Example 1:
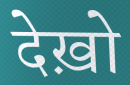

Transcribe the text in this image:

देख़ो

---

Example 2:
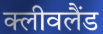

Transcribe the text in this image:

क्‍लीवलैंड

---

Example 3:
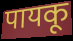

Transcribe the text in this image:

पायकू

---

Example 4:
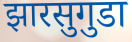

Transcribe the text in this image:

झारसुगुडा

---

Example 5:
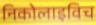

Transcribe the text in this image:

निकोलाइविच